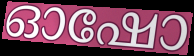
ഓഷോ